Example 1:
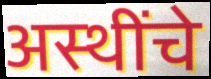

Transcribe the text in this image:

अस्थींचे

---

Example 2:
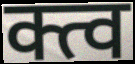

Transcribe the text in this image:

क्त्व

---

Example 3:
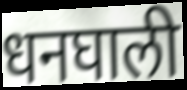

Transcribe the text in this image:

धनघाली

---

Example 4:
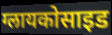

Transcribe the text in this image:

ग्लायकोसाइड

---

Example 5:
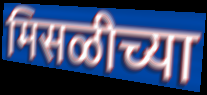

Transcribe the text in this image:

मिसळीच्या